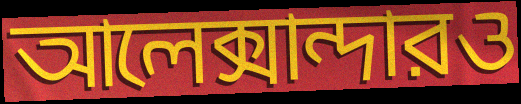
আলেক্সান্দারও